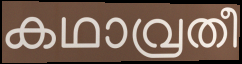
കഥാവ്രതീ